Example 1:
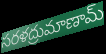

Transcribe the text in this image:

సరళద్రుమాణామ్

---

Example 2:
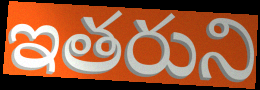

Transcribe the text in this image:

ఇతరుని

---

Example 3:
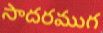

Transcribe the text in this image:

సాదరముగ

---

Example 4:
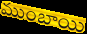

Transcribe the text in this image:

ముంబాయి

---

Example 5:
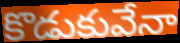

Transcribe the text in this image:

కొడుకువేనా